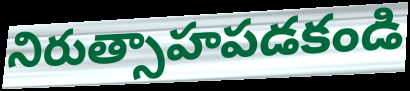
నిరుత్సాహపడకండి